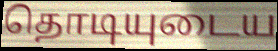
தொடியுடைய